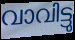
വാവിട്ടു